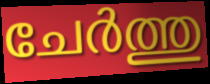
ചേർത്തു